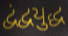
દ્વંદ્વયુદ્ધ